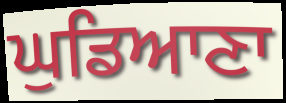
ਘੁਡਿਆਣਾ